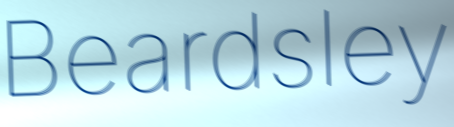
Beardsley